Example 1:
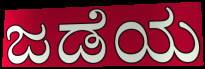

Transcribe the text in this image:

ಜಡೆಯ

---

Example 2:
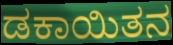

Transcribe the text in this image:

ಡಕಾಯಿತನ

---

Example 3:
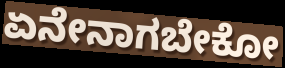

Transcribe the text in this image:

ಏನೇನಾಗಬೇಕೋ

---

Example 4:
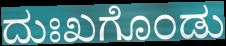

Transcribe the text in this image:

ದುಃಖಗೊಂಡು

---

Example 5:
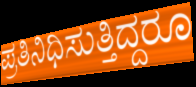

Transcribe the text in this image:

ಪ್ರತಿನಿಧಿಸುತ್ತಿದ್ದರೂ